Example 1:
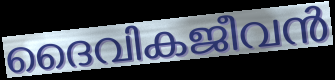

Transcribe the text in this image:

ദൈവികജീവൻ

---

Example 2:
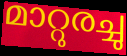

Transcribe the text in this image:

മാറ്റുരച്ചു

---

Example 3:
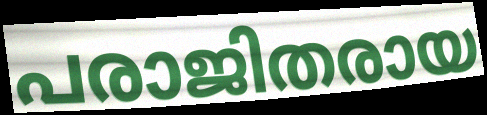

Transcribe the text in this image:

പരാജിതരായ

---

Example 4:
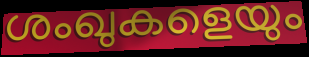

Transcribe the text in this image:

ശംഖുകളെയും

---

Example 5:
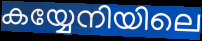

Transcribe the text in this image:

കയ്യേനിയിലെ